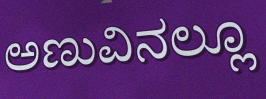
ಅಣುವಿನಲ್ಲೂ